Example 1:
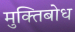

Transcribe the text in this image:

मुक्तिबोध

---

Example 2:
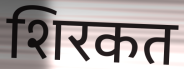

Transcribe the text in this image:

शिरकत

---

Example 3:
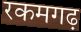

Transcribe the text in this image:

रकमगढ़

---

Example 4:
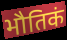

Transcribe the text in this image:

भौतिकं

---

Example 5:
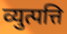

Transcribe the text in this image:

व्युत्पत्ति